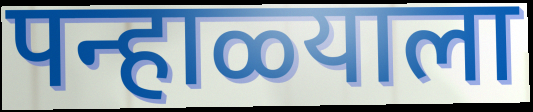
पन्हाळ्याला